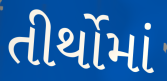
તીર્થોમાં